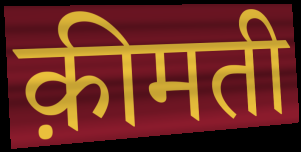
क़ीमती